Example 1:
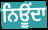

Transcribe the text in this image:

ਨਿਊਂਦਾ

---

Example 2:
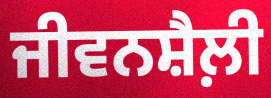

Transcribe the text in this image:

ਜੀਵਨਸ਼ੈਲ਼ੀ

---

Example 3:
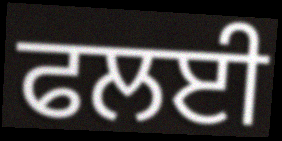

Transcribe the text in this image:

ਫਲਈ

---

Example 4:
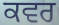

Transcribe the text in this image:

ਕਵਰ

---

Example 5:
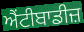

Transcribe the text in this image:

ਐਂਟੀਬਾਡੀਜ਼